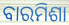
ବାରମିଶା